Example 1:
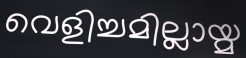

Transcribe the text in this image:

വെളിച്ചമില്ലായ്മ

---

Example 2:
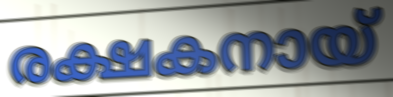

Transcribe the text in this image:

രക്ഷകനായ്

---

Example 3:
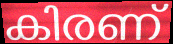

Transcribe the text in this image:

കിരണ്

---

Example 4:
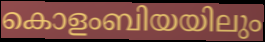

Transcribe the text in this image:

കൊളംബിയയിലും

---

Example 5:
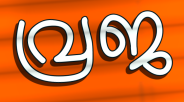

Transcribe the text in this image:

വ്രജ